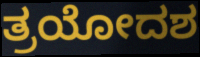
ತ್ರಯೋದಶ